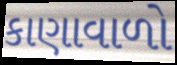
કાણાવાળો